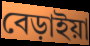
বেড়াইয়া